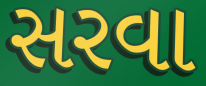
સરવા